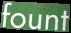
fount